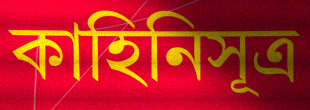
কাহিনিসূত্র